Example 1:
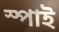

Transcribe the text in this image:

স্পাই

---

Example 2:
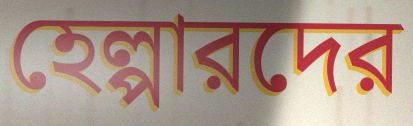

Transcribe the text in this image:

হেল্পারদের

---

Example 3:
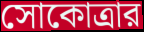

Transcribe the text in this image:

সোকোত্রার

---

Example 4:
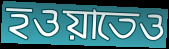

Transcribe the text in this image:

হওয়াতেও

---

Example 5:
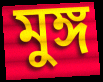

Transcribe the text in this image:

মুঙ্গ